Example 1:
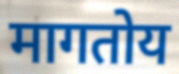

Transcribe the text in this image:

मागतोय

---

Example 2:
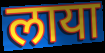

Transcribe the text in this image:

लाया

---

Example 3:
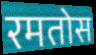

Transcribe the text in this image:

रमतोस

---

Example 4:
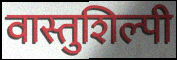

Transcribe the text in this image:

वास्तुशिल्पी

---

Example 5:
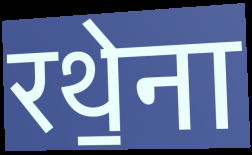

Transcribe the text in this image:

रथे॒ना